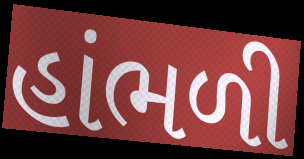
હાંભળી